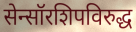
सेन्सॉरशिपविरुद्ध